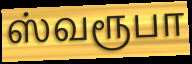
ஸ்வரூபா